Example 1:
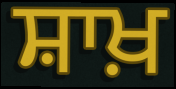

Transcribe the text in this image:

ਸ਼ਾਖ਼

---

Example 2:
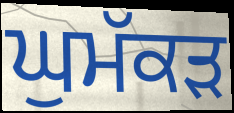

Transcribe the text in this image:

ਘੁਮੱਕਡ਼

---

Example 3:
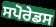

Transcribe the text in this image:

ਸਪੋਰੇਡਸ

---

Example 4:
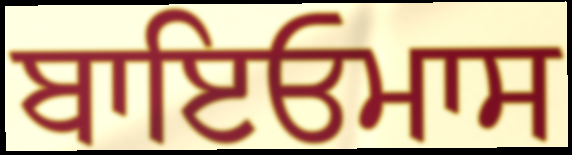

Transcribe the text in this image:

ਬਾਇਓਮਾਸ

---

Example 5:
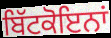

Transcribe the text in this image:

ਬਿੱਟਕੋਇਨਾਂ